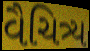
વૈચિત્ર્ય